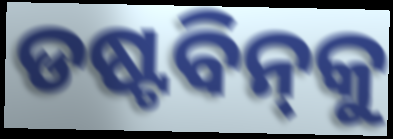
ଡଷ୍ଟବିନ୍‌କୁ